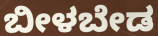
ಬೀಳಬೇಡ